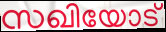
സഖിയോട്